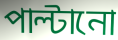
পাল্টানো